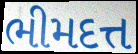
ભીમદત્ત